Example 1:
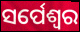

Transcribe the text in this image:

ସର୍ପେଶ୍ଵର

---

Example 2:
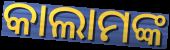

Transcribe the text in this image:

କାଲାମଙ୍କ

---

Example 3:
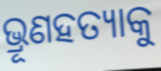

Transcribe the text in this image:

ଭ୍ରୂଣହତ୍ୟାକୁ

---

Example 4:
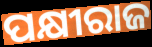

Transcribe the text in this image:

ପକ୍ଷୀରାଜ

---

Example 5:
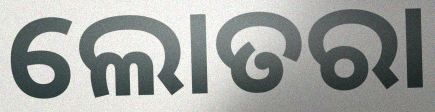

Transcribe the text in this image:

ଲୋତରା